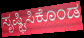
ಸೃಷ್ಟಿಸಿಕೊಂಡ